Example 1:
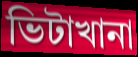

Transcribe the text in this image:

ভিটাখানা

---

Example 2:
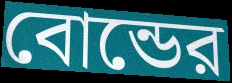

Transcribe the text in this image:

বোন্ডের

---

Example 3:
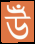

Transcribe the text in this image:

উঁ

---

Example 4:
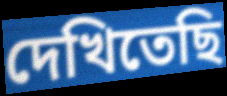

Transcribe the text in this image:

দেখিতেছি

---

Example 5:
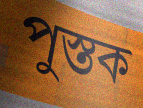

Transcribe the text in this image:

পুস্তক